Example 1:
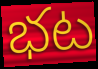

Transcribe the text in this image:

భట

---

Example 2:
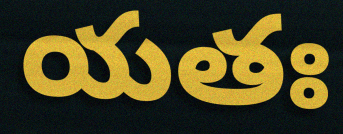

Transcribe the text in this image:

యతః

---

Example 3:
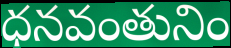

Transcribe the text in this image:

ధనవంతునిం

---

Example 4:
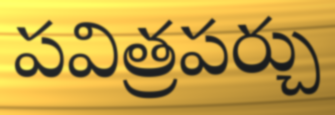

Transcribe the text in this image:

పవిత్రపర్చు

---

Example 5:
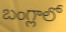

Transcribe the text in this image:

బంగ్లాలో